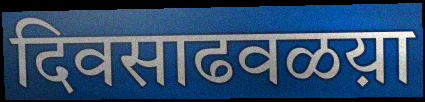
दिवसाढवळय़ा